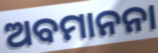
ଅବମାନନା